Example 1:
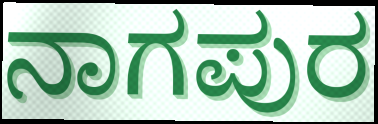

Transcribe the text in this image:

ನಾಗಪುರ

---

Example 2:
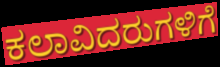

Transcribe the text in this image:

ಕಲಾವಿದರುಗಳಿಗೆ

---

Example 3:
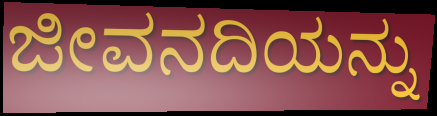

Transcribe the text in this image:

ಜೀವನದಿಯನ್ನು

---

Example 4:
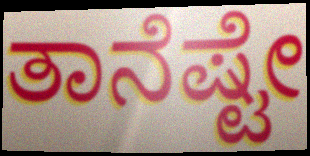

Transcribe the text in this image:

ತಾನೆಷ್ಟೇ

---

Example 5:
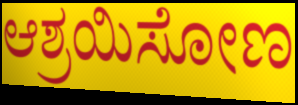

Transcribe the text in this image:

ಆಶ್ರಯಿಸೋಣ